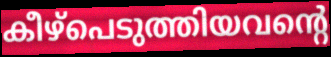
കീഴ്പെടുത്തിയവന്റെ